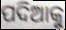
ପଦିଆକୁ